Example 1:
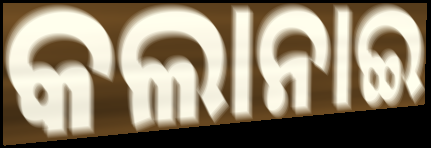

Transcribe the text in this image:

କଲାନାଇ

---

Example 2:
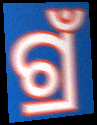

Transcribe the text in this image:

ଗ୍ରଁ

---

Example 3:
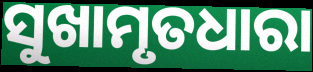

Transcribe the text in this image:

ସୁଖାମୃତଧାରା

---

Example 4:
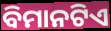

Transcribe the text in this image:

ବିମାନଟିଏ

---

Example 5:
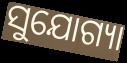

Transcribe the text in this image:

ସୁଯୋଗ୍ୟା